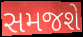
સમજશે